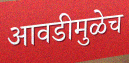
आवडीमुळेच